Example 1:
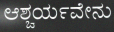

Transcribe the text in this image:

ಆಶ್ಚರ್ಯವೇನು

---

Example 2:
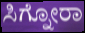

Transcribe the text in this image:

ಸಿಗ್ನೋರಾ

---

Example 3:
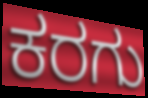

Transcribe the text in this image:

ಕರಗು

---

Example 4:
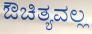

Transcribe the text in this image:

ಔಚಿತ್ಯವಲ್ಲ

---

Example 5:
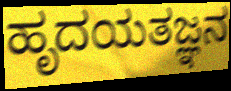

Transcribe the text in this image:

ಹೃದಯತಜ್ಞನ